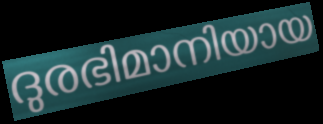
ദുരഭിമാനിയായ